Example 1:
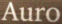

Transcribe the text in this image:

Auro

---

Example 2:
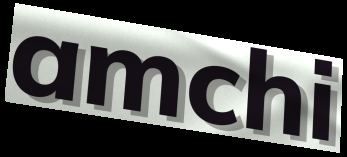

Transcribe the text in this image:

amchi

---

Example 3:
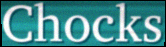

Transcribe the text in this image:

Chocks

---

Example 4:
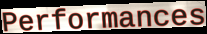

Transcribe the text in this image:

Performances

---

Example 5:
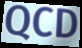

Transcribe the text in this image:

QCD